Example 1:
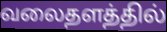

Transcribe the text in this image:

வலைதளத்தில்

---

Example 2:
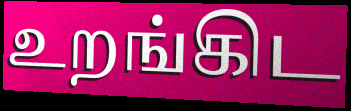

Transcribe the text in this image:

உறங்கிட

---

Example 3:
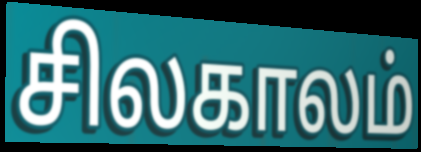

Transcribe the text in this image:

சிலகாலம்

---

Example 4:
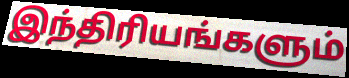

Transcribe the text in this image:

இந்திரியங்களும்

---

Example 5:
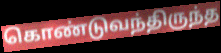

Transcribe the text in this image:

கொண்டுவந்திருந்த